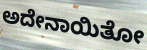
ಅದೇನಾಯಿತೋ